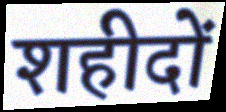
शहीदों